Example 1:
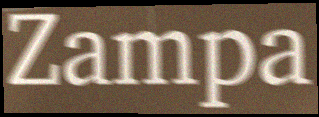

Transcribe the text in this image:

Zampa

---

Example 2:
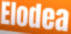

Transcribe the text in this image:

Elodea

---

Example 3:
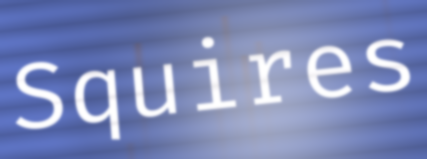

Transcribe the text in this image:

Squires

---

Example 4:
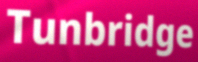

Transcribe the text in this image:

Tunbridge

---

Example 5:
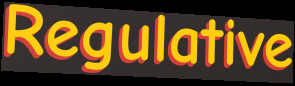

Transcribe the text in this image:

Regulative